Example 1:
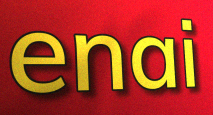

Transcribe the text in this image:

enai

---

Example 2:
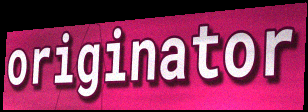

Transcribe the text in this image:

originator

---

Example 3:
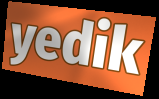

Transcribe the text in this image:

yedik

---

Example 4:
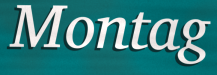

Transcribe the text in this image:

Montag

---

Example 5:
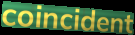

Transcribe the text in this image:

coincident